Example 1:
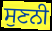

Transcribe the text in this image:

ਸੁਣਨੀ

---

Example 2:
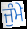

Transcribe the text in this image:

ਜੁੰਮੇ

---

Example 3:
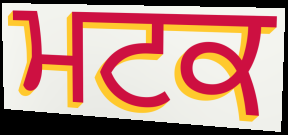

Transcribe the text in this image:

ਮਟਕ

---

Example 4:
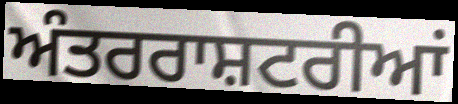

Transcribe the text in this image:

ਅੰਤਰਰਾਸ਼ਟਰੀਆਂ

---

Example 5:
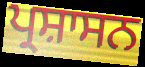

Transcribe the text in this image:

ਪ੍ਰਸ਼ਾਸਨ